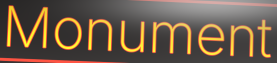
Monument